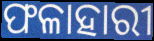
ଫଳାହାରୀ